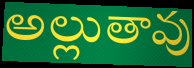
అల్లుతావు